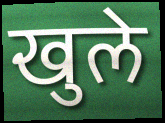
खुले